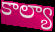
కాల్యా